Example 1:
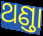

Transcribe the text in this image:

ଥଣ୍ଡା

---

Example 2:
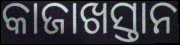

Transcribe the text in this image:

କାଜାଖସ୍ତାନ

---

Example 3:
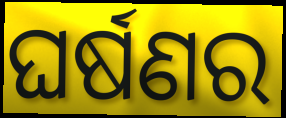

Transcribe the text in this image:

ଘର୍ଷଣର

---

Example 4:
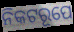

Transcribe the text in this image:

ନିକଟରୂପେ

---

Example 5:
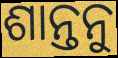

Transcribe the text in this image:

ଶାନ୍ତନୁ